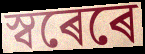
স্বৰেৰে